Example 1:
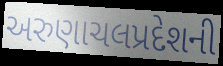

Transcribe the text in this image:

અરુણાચલપ્રદેશની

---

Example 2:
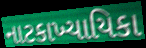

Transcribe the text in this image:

નાટકાખ્યાયિકા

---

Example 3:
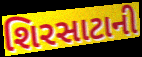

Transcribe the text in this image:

શિરસાટાની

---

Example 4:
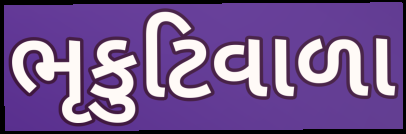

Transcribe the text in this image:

ભૃકુટિવાળા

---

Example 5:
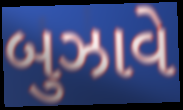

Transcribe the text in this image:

બુઝાવે